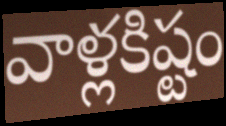
వాళ్లకిష్టం